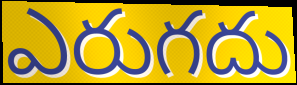
ఎరుగదు